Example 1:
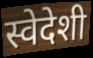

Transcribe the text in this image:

स्वेदेशी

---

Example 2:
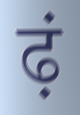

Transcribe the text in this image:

ढ़ं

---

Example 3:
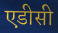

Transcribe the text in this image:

एडीसी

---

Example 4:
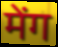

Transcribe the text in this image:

मेंग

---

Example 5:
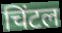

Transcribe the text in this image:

चिंटल